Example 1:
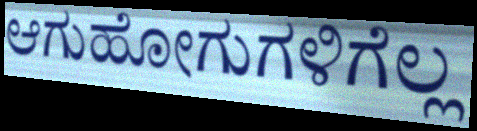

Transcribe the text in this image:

ಆಗುಹೋಗುಗಳಿಗೆಲ್ಲ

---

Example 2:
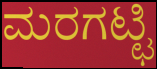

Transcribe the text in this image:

ಮರಗಟ್ಟಿ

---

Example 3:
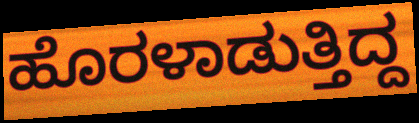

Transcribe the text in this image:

ಹೊರಳಾಡುತ್ತಿದ್ದ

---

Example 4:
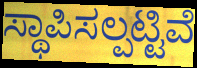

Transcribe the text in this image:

ಸ್ಥಾಪಿಸಲ್ಪಟ್ಟಿವೆ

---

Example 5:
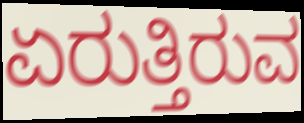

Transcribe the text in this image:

ಏರುತ್ತಿರುವ